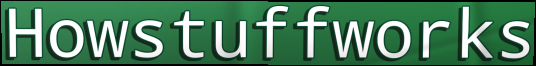
Howstuffworks